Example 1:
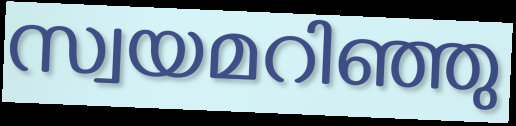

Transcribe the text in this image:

സ്വയമറിഞ്ഞു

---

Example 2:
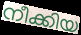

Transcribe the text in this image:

നീക്കിയ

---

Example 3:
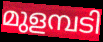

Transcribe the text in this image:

മുളമ്പടി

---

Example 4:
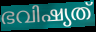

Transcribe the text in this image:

ഭവിഷ്യത്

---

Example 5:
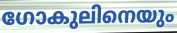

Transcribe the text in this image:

ഗോകുലിനെയും